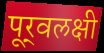
पूर्वलक्षी